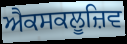
ਐਕਸਕਲੂਜ਼ਿਵ